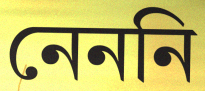
নেননি